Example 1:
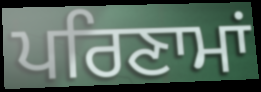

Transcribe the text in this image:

ਪਰਿਣਾਮਾਂ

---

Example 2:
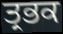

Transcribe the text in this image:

ਤ੍ਰਭਕ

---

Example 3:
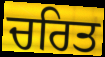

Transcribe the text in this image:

ਚਰਿਤ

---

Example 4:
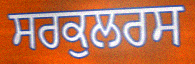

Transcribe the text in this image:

ਸਰਕੁਲਰਸ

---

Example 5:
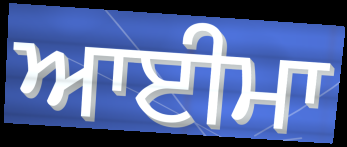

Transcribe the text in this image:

ਆਈਮਾ